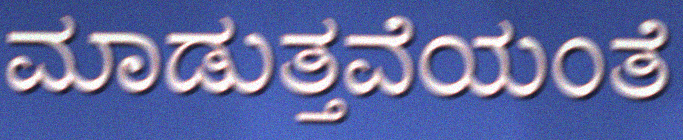
ಮಾಡುತ್ತವೆಯಂತೆ